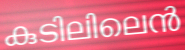
കുടിലിലെൻ